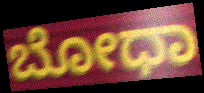
ಬೋಧಾ